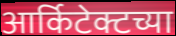
आर्किटेक्टच्या